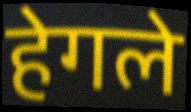
हेगले